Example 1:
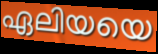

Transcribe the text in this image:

ഏലിയയെ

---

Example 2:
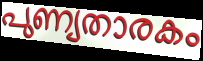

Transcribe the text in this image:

പുണ്യതാരകം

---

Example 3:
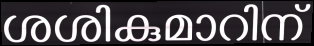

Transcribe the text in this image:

ശശികുമാറിന്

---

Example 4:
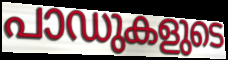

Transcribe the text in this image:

പാഡുകളുടെ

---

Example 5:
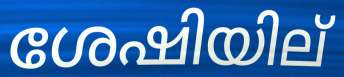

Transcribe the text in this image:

ശേഷിയില്